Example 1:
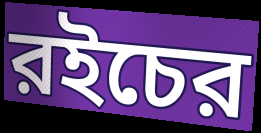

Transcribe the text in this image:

রইচের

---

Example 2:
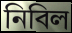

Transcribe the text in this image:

নিবিল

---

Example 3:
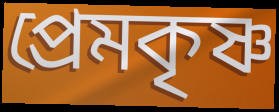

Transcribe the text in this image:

প্রেমকৃষ্ণ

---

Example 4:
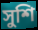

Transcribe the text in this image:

সুশি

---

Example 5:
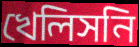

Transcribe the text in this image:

খেলিসনি